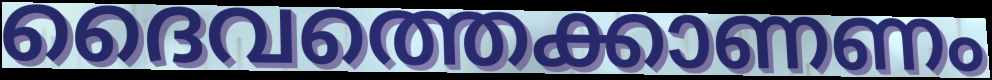
ദൈവത്തെക്കാണണം